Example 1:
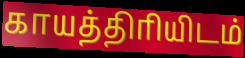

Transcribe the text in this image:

காயத்திரியிடம்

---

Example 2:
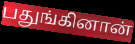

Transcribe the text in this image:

பதுங்கினான்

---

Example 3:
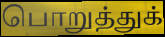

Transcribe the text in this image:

பொறுத்துக்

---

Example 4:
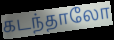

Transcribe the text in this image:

கடந்தாலோ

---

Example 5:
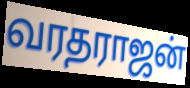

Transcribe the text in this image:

வரதராஜன்